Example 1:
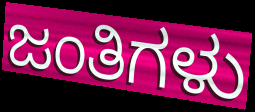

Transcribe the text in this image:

ಜಂತಿಗಳು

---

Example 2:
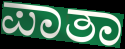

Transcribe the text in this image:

ಪಾತಾ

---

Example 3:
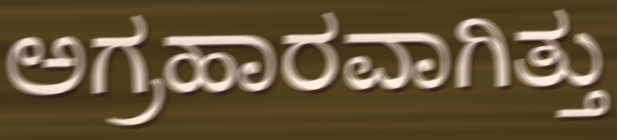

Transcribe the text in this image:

ಅಗ್ರಹಾರವಾಗಿತ್ತು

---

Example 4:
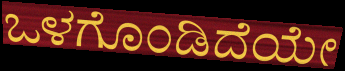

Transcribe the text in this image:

ಒಳಗೊಂಡಿದೆಯೇ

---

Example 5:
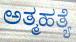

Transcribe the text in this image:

ಅತ್ಮಹತ್ಯೆ